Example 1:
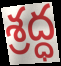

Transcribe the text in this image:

శ్రద్ధ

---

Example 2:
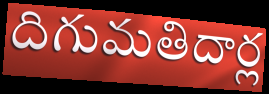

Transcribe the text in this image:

దిగుమతిదార్ల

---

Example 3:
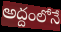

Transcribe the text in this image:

అద్దంలోనే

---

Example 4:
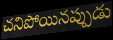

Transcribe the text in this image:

చనిపోయినప్పుడు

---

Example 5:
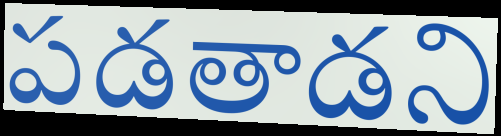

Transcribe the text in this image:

పడతాడని